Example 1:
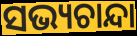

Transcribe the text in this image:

ସଭ୍ୟଚାନ୍ଦା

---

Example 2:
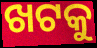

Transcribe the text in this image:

ଖଟକୁ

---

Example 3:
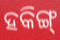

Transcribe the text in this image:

ହକିଙ୍ଗ୍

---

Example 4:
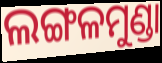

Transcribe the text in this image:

ଲଙ୍ଗଳମୁଣ୍ଡା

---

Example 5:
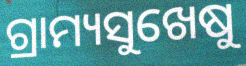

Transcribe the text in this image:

ଗ୍ରାମ୍ୟସୁଖେଷୁ